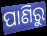
ପାଣିରୁ